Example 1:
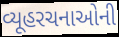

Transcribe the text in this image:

વ્યૂહરચનાઓની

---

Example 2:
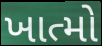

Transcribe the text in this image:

ખાત્મો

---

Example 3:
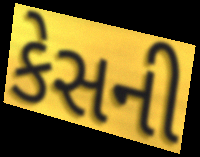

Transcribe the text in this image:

કેસની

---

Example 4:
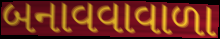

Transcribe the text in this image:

બનાવવાવાળા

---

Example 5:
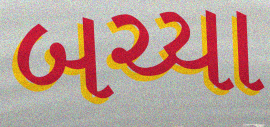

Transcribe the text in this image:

બચ્યા